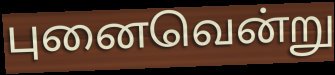
புனைவென்று